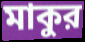
মাকুর